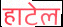
हाटेल